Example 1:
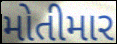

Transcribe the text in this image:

મોતીમાર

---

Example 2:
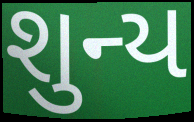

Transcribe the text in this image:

શુન્ય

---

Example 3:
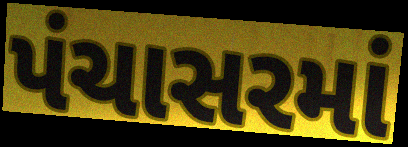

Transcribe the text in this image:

પંચાસરમાં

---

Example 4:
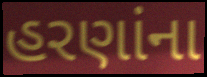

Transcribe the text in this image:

હરણાંના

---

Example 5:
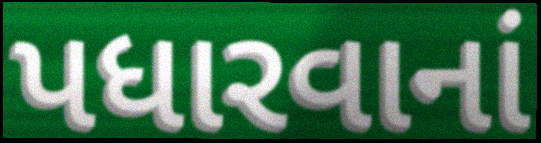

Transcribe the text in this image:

પધારવાનાં